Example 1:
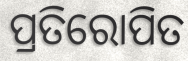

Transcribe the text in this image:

ପ୍ରତିରୋପିତ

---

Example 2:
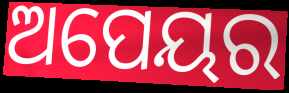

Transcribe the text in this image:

ଅପେୟର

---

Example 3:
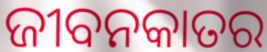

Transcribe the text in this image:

ଜୀବନକାତର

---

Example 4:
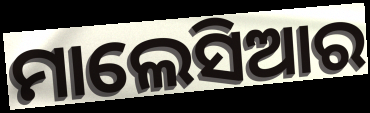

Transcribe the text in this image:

ମାଲେସିଆର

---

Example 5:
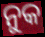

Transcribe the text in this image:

ନୁକ